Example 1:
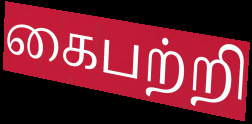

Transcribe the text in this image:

கைபற்றி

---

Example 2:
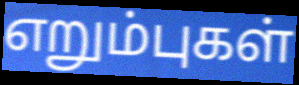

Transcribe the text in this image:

எறும்புகள்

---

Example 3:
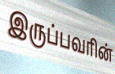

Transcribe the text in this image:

இருப்பவரின்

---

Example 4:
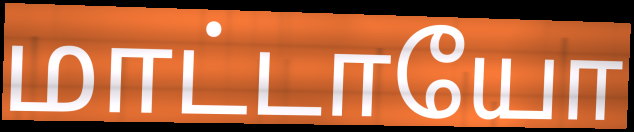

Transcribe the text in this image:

மாட்டாயோ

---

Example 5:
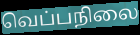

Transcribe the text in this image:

வெப்பநிலை